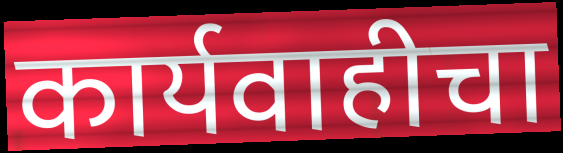
कार्यवाहीचा